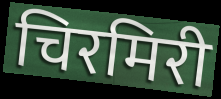
चिरमिरी